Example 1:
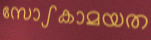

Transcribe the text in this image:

സോഽകാമയത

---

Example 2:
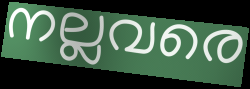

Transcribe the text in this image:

നല്ലവരെ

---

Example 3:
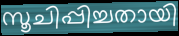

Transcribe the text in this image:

സൂചിപ്പിച്ചതായി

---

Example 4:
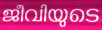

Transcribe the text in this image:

ജീവിയുടെ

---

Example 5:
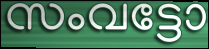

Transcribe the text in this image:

സംവട്ടോ